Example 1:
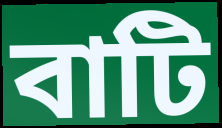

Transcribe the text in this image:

বাটি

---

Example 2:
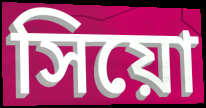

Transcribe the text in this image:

সিয়ো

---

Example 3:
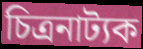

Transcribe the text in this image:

চিত্ৰনাট্যক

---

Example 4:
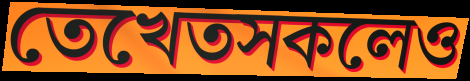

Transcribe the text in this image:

তেখেতসকলেও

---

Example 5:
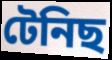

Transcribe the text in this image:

টেনিছ